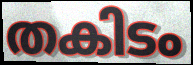
തകിടം